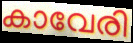
കാവേരി